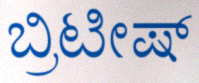
ಬ್ರಿಟೀಷ್